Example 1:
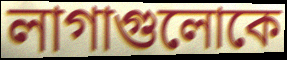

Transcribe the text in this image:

লাগাগুলোকে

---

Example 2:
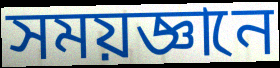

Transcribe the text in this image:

সময়জ্ঞানে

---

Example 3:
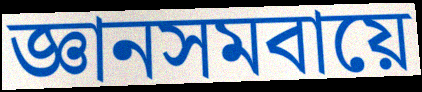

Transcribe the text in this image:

জ্ঞানসমবায়ে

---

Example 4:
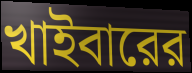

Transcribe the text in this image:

খাইবারের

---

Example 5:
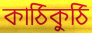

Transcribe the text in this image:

কাঠিকুঠি